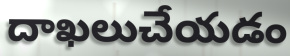
దాఖలుచేయడం